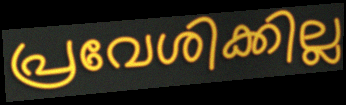
പ്രവേശിക്കില്ല